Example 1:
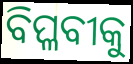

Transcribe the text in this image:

ବିପ୍ଳବୀକୁ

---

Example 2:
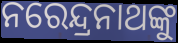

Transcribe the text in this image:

ନରେନ୍ଦ୍ରନାଥଙ୍କୁ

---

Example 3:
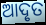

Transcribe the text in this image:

ଆଦୃତ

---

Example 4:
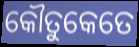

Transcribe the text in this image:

କୌତୁକେତେ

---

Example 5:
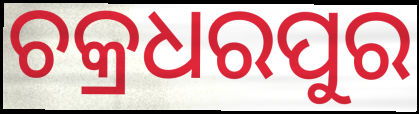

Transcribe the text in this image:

ଚକ୍ରଧରପୁର